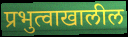
प्रभुत्वाखालील